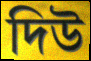
দিউ